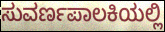
ಸುವರ್ಣಪಾಲಕಿಯಲ್ಲಿ